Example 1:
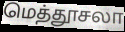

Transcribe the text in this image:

மெத்தூசலா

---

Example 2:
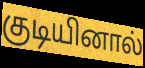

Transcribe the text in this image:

குடியினால்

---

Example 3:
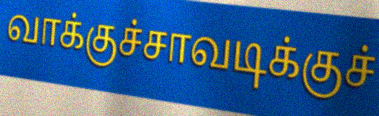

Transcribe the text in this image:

வாக்குச்சாவடிக்குச்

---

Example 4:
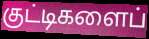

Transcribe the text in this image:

குட்டிகளைப்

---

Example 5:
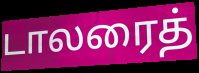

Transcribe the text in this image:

டாலரைத்